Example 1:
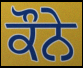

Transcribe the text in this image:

ਕੌਨੇ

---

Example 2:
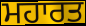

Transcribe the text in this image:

ਮਹਾਰਤ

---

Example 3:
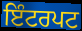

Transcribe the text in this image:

ਇੰਟਰਪਟ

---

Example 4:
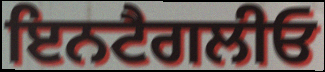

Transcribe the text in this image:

ਇਨਟੈਗਲੀਓ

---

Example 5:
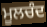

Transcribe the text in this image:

ਮੂਲਚੰਦ